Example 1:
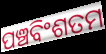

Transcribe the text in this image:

ପଞ୍ଚବିଂଶତମ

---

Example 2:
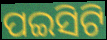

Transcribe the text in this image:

ପଇସିଟି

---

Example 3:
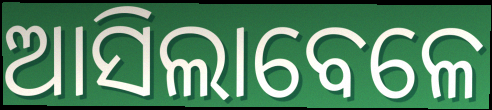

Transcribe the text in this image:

ଆସିଲାବେଳେ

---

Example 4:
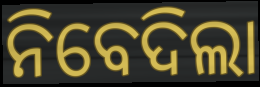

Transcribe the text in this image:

ନିବେଦିଲା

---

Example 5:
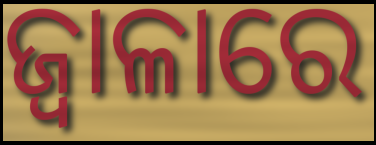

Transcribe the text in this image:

ଜ୍ଵାଳାରେ